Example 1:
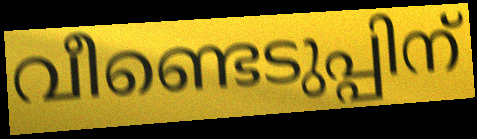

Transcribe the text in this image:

വീണ്ടെടുപ്പിന്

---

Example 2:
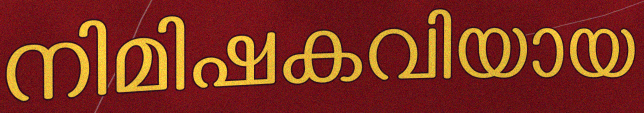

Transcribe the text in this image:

നിമിഷകവിയായ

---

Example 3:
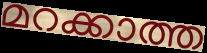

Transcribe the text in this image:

മറക്കാത്ത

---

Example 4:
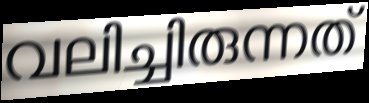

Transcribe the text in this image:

വലിച്ചിരുന്നത്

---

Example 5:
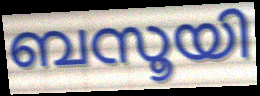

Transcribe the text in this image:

ബസൂയി